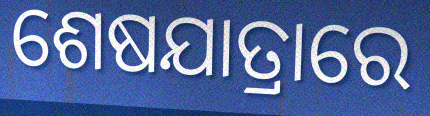
ଶେଷଯାତ୍ରାରେ